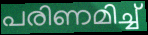
പരിണമിച്ച്